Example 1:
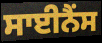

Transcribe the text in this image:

ਸਾਈਨੈਂਸ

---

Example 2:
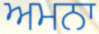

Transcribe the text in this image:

ਅਮਨਾ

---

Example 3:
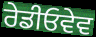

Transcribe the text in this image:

ਰੇਡੀਓਵੇਵ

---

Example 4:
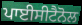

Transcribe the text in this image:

ਪਾਈਸੀਟੈਨੋਲ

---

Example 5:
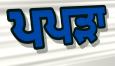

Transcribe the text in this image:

ਪਪੜਾ